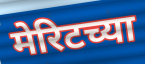
मेरिटच्या